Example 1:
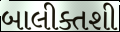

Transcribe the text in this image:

બાલીક્તશી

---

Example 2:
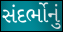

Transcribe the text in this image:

સંદર્ભોનું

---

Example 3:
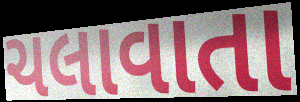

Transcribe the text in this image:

ચલાવાતા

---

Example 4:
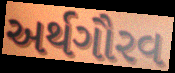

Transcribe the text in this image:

અર્થગૌરવ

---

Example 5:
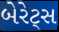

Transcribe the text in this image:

બેરેટ્સ